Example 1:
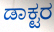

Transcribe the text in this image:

ಡಾಕ್ಟರ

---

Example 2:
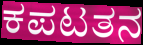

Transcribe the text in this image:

ಕಪಟತನ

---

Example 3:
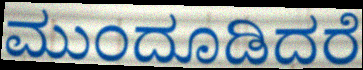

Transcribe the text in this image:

ಮುಂದೂಡಿದರೆ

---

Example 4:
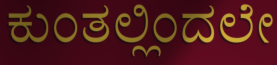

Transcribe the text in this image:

ಕುಂತಲ್ಲಿಂದಲೇ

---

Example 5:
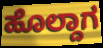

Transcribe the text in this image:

ಹೊಲ್ದಾಗ